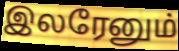
இலரேனும்